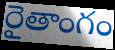
రైతాంగం